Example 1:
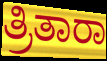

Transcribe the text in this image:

ತ್ರಿತಾರಾ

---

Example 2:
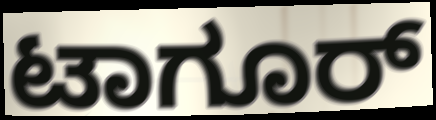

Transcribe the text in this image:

ಟಾಗೂರ್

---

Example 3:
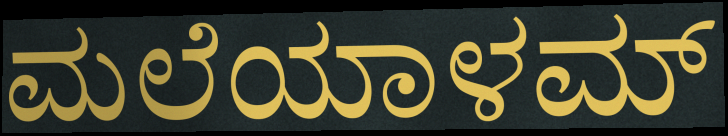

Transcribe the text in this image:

ಮಲೆಯಾಳಮ್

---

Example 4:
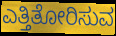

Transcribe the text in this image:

ಎತ್ತಿತೋರಿಸುವ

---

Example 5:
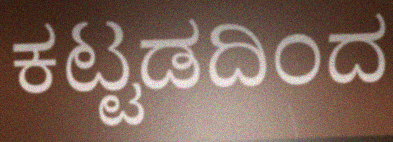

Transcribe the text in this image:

ಕಟ್ಟಡದಿಂದ